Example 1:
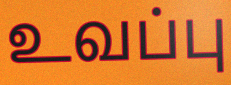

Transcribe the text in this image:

உவப்பு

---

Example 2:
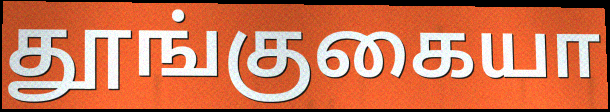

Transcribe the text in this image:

தூங்குகையா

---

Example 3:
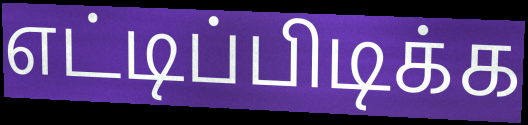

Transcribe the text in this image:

எட்டிப்பிடிக்க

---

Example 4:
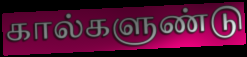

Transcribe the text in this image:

கால்களுண்டு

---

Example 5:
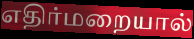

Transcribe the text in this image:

எதிர்மறையால்